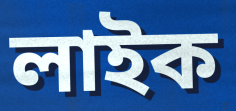
লাইক